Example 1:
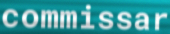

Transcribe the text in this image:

commissar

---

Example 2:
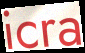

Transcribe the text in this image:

icra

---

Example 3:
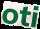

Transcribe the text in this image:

oti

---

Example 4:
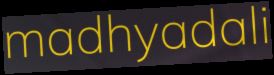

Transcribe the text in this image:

madhyadali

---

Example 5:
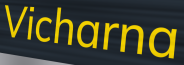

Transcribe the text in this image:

Vicharna